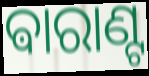
ଵାରାଣ୍ଟ